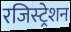
रजिस्‍ट्रेशन